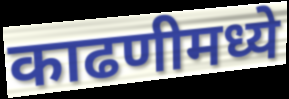
काढणीमध्ये